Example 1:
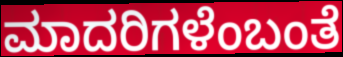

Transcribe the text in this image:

ಮಾದರಿಗಳೆಂಬಂತೆ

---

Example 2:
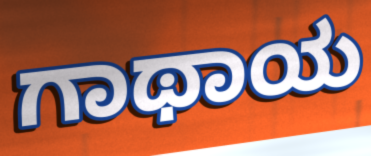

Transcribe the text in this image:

ಗಾಥಾಯ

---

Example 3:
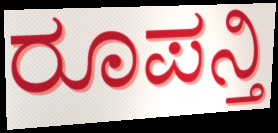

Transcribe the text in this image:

ರೂಪನ್ತಿ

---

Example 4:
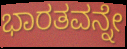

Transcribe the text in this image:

ಭಾರತವನ್ನೇ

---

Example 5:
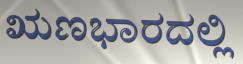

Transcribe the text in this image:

ಋಣಭಾರದಲ್ಲಿ